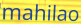
mahilao